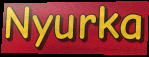
Nyurka